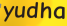
yudha